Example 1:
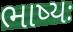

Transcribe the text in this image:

ભાષ્યઃ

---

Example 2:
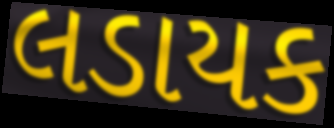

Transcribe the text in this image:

લડાયક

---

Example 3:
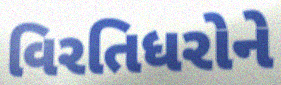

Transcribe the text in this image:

વિરતિધરોને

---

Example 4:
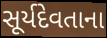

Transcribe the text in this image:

સૂર્યદેવતાના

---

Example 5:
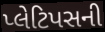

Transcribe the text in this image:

પ્લેટિપસની